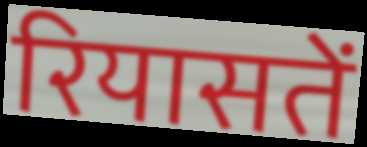
रियासतें